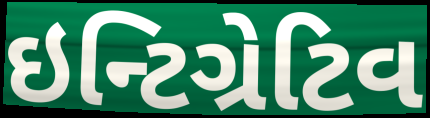
ઇન્ટિગ્રેટિવ